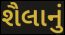
શૈલાનું